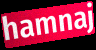
hamnaj